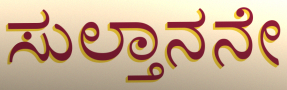
ಸುಲ್ತಾನನೇ